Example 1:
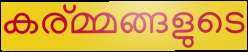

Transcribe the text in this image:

കര്മ്മങ്ങളുടെ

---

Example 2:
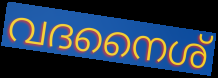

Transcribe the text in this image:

വദനൈശ്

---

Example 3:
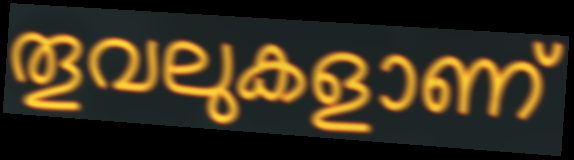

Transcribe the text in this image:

തൂവലുകളാണ്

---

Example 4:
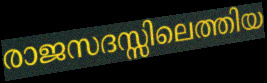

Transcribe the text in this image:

രാജസദസ്സിലെത്തിയ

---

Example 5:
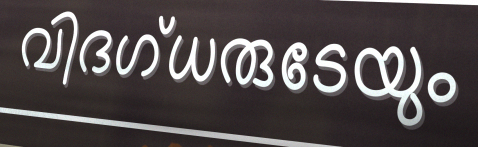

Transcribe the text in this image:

വിദഗ്ധരുടേയും